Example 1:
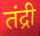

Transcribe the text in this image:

तंद्री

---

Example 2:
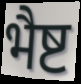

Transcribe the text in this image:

भैष्ट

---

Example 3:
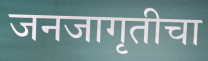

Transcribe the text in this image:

जनजागृतीचा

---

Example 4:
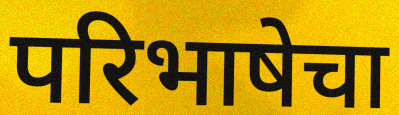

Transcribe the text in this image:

परिभाषेचा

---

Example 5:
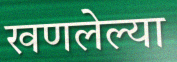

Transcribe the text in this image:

खणलेल्या